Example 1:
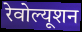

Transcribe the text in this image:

रेवोल्यूशन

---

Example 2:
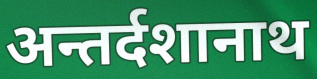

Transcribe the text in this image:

अन्तर्दशानाथ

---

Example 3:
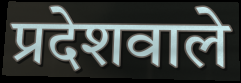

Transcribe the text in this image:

प्रदेशवाले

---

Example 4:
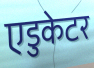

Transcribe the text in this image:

एडुकेटर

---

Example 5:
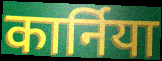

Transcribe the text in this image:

कार्निया